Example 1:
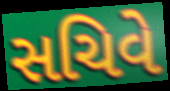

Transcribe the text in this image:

સચિવે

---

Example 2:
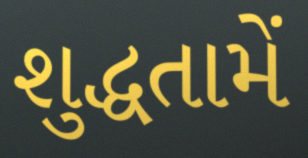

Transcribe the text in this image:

શુદ્ધતામેં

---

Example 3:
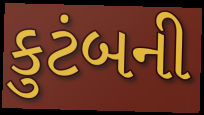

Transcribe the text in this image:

કુટંબની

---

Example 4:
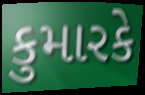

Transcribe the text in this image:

કુમારકે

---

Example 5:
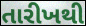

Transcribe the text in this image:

તારીખથી